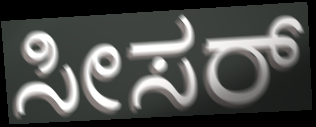
ಸೀಸರ್